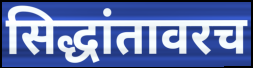
सिद्धांतावरच